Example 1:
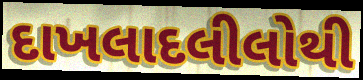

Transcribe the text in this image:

દાખલાદલીલોથી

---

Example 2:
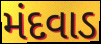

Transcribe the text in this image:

મંદવાડ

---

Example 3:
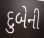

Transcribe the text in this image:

દુબેની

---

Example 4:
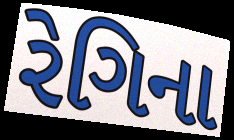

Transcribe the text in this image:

રેગિના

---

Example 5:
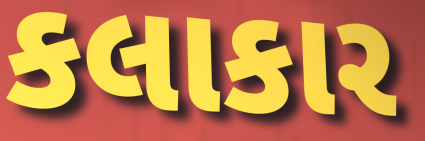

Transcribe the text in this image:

કલાકાર